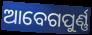
ଆବେଗପୁର୍ଣ୍ଣ